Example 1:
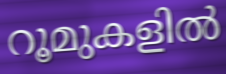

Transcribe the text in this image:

റൂമുകളിൽ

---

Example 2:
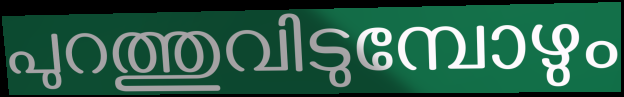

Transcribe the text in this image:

പുറത്തുവിടുമ്പോഴും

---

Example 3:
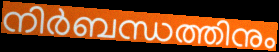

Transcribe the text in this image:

നിർബന്ധത്തിനും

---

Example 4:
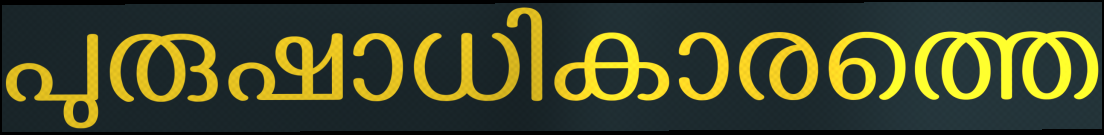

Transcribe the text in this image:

പുരുഷാധികാരത്തെ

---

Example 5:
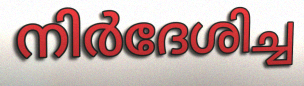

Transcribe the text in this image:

നിർദേശിച്ച